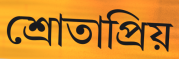
শ্রোতাপ্রিয়